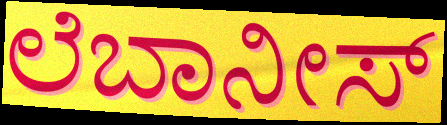
ಲೆಬಾನೀಸ್